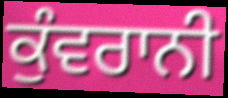
ਕੁੰਵਰਾਨੀ